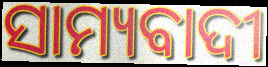
ସାମ୍ୟବାଦୀ